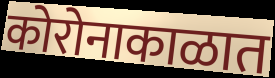
कोरोनाकाळात